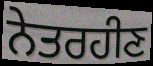
ਨੇਤਰਹੀਣ